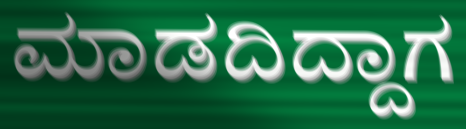
ಮಾಡದಿದ್ದಾಗ